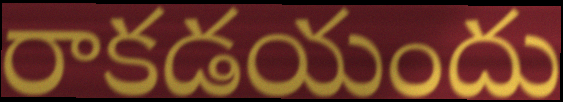
రాకడయందు